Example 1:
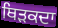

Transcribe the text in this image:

ਥਿੜਕਦਾ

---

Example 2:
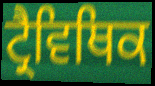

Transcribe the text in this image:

ਟ੍ਰੈਵਿਥਿਕ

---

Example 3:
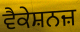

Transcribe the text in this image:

ਵੈਕੇਸ਼ਨਜ਼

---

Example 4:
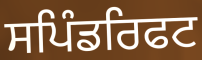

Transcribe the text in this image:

ਸਪਿੰਡਰਿਫਟ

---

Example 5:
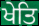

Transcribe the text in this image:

ਖੇਤਿ